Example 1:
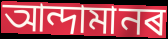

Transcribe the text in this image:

আন্দামানৰ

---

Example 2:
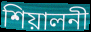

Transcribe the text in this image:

শিয়ালনী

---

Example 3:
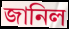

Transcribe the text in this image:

জানিল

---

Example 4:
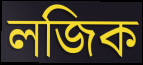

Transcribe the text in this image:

লজিক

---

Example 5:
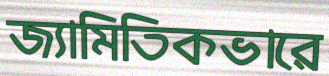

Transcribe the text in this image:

জ্যামিতিকভাৱে